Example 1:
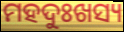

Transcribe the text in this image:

ମହଦୁଃଖସ୍ୟ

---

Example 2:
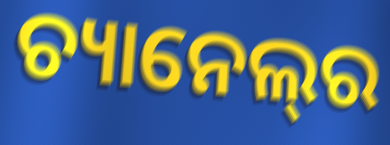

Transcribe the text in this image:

ଚ୍ୟାନେଲ୍‌ର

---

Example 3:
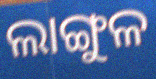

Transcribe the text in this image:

ଲାଙ୍ଗୁଳ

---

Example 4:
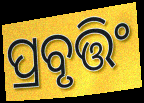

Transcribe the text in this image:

ପ୍ରବୃତ୍ତିଂ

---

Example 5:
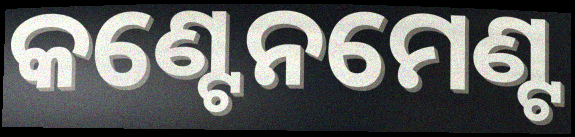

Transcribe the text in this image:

କଣ୍ଟେନମେଣ୍ଟ